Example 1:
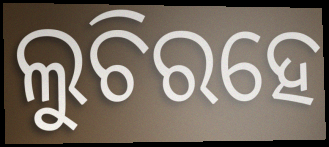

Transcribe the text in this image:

ଲୁଚିରହେ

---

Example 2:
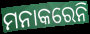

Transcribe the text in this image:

ମନାକରେନି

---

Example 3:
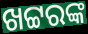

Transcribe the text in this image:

ଖଟ୍ଟରଙ୍କ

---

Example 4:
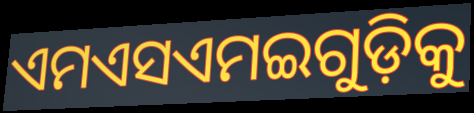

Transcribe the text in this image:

ଏମଏସଏମଇଗୁଡ଼ିକୁ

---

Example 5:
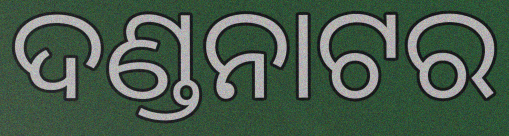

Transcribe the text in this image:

ଦଣ୍ଡନାଟର